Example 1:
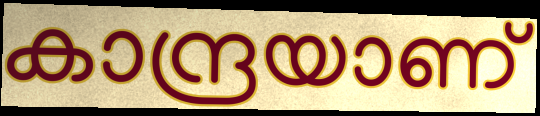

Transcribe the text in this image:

കാന്ദ്രയാണ്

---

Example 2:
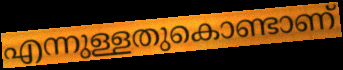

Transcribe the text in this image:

എന്നുള്ളതുകൊണ്ടാണ്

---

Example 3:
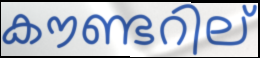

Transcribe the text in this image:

കൗണ്ടറില്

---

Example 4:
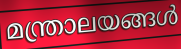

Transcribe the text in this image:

മന്ത്രാലയങ്ങൾ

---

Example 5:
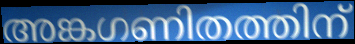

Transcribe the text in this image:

അങ്കഗണിതത്തിന്